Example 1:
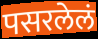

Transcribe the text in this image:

पसरलेलं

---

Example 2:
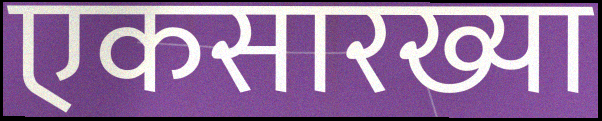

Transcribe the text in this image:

एकसारख्या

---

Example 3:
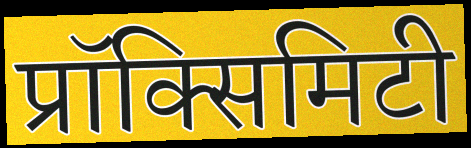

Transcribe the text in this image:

प्रॉक्सिमिटी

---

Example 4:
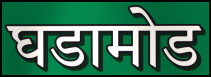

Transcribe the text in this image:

घडामोड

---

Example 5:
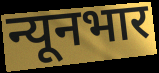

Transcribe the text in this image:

न्यूनभार